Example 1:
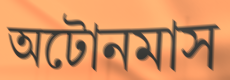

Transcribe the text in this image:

অটোনমাস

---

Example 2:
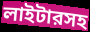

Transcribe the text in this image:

লাইটারসহ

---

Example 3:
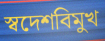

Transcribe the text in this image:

স্বদেশবিমুখ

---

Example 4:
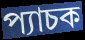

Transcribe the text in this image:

প্যাচক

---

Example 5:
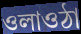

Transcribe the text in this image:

ওলাওঠা